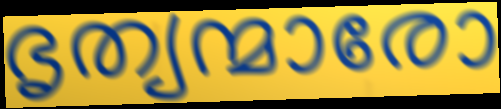
ഭൃത്യന്മാരോ